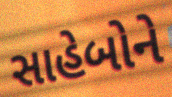
સાહેબોને